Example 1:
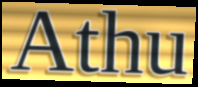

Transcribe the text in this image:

Athu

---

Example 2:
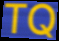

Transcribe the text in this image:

TQ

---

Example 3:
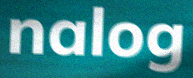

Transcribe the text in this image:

nalog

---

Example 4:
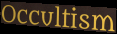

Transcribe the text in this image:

Occultism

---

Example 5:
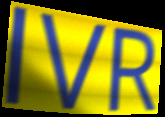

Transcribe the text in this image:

IVR